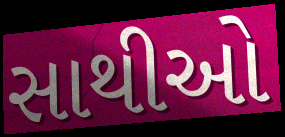
સાથીઓ